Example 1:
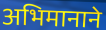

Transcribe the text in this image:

अभिमानाने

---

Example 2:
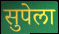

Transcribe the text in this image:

सुपेला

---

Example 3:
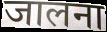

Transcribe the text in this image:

जालना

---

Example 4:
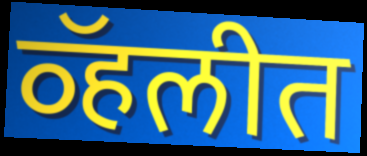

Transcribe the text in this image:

व्हॅलीत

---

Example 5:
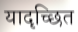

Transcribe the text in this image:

यादृच्छित